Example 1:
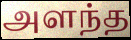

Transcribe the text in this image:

அளந்த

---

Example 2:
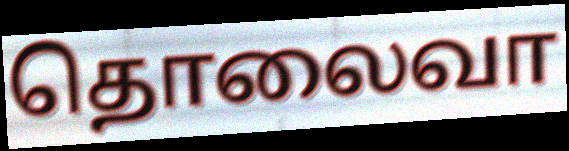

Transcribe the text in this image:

தொலைவா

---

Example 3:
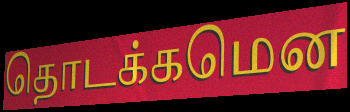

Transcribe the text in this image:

தொடக்கமென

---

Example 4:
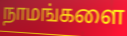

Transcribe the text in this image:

நாமங்களை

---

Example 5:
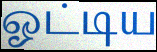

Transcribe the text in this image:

ஓட்டிய